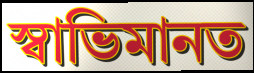
স্বাভিমানত